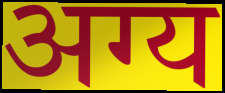
अग्य